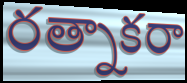
రత్నాకరా